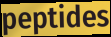
peptides